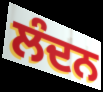
ਲੰਦਨ